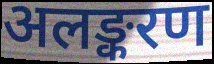
अलङ्करण